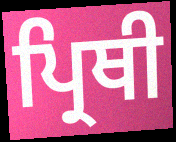
ਪ੍ਰਿਥੀ